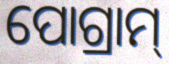
ପୋଗ୍ରାମ୍